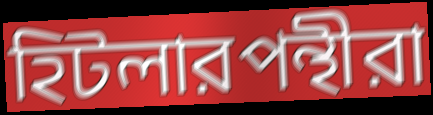
হিটলারপন্থীরা